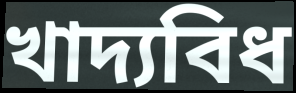
খাদ্যবিধ